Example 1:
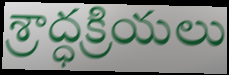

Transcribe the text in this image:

శ్రాద్ధక్రియలు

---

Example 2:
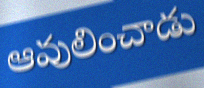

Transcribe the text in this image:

ఆవులించాడు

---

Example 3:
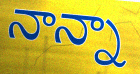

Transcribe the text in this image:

నాన్నా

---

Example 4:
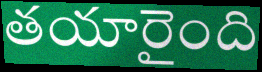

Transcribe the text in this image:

తయారైంది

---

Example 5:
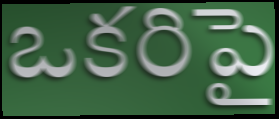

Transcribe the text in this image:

ఒకరిపై